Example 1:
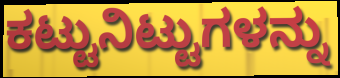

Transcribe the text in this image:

ಕಟ್ಟುನಿಟ್ಟುಗಳನ್ನು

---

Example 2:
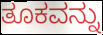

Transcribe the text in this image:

ತೂಕವನ್ನು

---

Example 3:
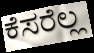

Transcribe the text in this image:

ಕೆಸರೆಲ್ಲ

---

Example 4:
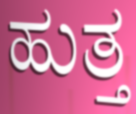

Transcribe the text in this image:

ಹುತ್ತ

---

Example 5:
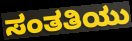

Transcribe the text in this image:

ಸಂತತಿಯು